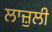
ਲਾਜ਼ੁਲੀ